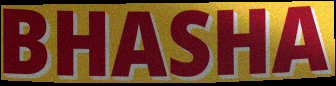
BHASHA